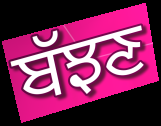
ਬੱਝਣ